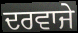
ਦਰਵਾਜੇ